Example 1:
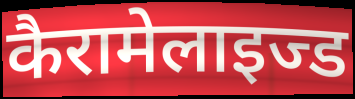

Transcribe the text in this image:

कैरामेलाइज्ड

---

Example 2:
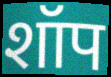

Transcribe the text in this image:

शॉप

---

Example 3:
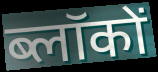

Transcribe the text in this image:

ब्लॉकों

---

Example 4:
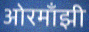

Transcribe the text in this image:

ओरमाँझी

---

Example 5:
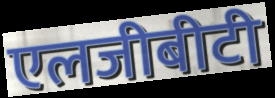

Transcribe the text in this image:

एलजीबीटी